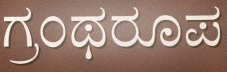
ಗ್ರಂಥರೂಪ